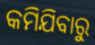
କମିଯିବାରୁ